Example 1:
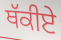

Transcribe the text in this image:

ਥੱਕੀਏ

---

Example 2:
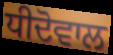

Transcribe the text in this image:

ਧੀਦੋਵਾਲ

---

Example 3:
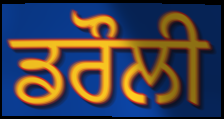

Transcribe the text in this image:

ਡਰੌਲੀ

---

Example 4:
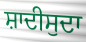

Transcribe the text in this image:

ਸ਼ਾਦੀਸੁਦਾ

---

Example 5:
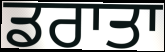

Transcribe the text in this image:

ਡਰਾਤਾ